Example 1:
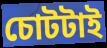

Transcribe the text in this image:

চোটটাই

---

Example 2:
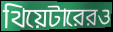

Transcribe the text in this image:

থিয়েটারেরও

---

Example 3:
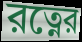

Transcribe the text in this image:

রত্নের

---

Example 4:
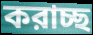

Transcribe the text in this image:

করাচ্ছ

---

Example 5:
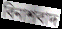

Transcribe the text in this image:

বিনাশবাদ